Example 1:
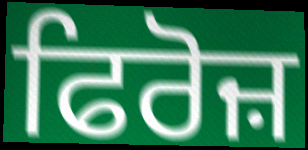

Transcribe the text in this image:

ਫਿਰੋਜ਼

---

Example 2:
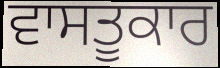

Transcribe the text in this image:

ਵਾਸਤੂਕਾਰ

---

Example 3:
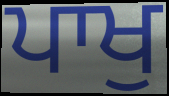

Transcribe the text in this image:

ਪਾਖੁ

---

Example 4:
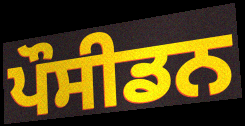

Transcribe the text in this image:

ਪੌਸੀਡਨ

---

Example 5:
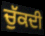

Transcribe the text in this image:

ਚੁੱਕਦੀ